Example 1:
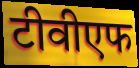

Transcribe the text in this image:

टीवीएफ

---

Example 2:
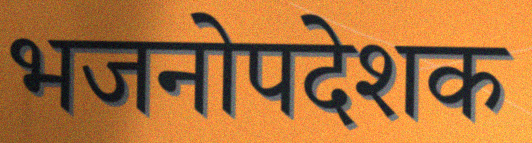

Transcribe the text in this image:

भजनोपदेशक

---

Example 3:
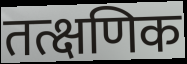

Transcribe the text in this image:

तत्क्षणिक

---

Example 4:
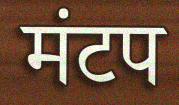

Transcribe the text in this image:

मंटप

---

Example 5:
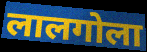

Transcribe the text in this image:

लालगोला